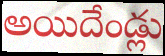
అయిదేండ్లు